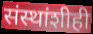
संस्थांशीही